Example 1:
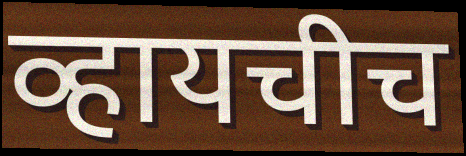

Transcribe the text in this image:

व्हायचीच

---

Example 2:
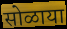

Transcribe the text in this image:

सोळाया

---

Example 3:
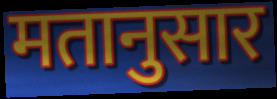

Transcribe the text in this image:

मतानुसार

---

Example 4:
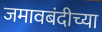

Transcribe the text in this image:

जमावबंदीच्या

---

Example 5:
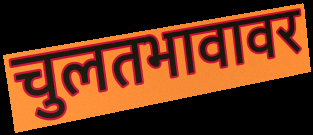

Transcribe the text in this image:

चुलतभावावर